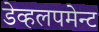
डेव्हलपमेन्ट